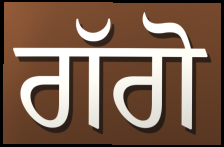
ਗੱਗੋ